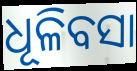
ଧୂଳିବସା